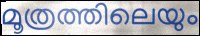
മൂത്രത്തിലെയും